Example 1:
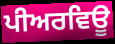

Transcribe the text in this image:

ਪੀਅਰਵਿਊ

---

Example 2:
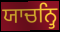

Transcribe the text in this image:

ਯਾਚਨ੍ਤਿ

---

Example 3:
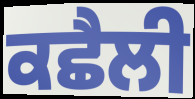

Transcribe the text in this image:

ਕਛੈਲੀ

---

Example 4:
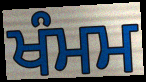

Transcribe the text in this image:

ਖੰਮਮ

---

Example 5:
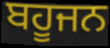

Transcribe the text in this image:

ਬਹੂਜਨ